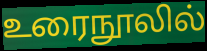
உரைநூலில்